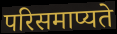
परिसमाप्यते